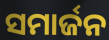
ସମାର୍ଜନ